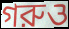
গৰুও